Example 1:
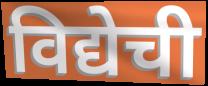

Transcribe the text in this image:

विद्येची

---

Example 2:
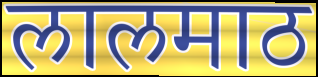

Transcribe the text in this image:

लालमाठ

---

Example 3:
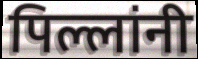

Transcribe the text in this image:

पिल्लांनी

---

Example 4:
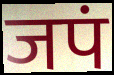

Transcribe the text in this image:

जपं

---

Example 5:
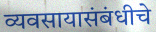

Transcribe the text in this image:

व्यवसायासंबंधीचे